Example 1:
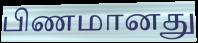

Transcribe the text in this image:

பிணமானது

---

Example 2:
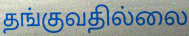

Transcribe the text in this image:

தங்குவதில்லை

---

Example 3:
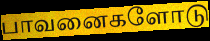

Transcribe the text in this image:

பாவனைகளோடு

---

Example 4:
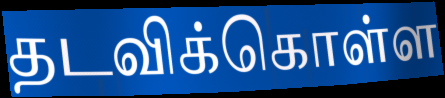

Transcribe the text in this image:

தடவிக்கொள்ள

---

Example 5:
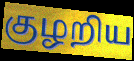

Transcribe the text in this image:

குழறிய